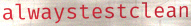
alwaystestclean